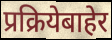
प्रक्रियेबाहेर